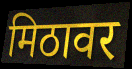
मिठावर